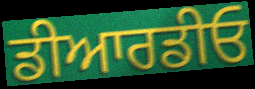
ਡੀਆਰਡੀਓ